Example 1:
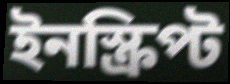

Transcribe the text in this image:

ইনস্ক্রিপ্ট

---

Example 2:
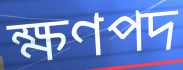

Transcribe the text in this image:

ক্ষণপদ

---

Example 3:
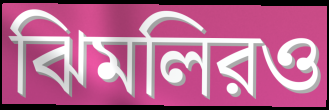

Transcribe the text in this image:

ঝিমলিরও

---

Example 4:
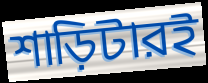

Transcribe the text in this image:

শাড়িটারই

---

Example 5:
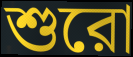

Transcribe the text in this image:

শুরো